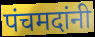
पंचमदांनी